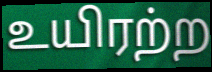
உயிரற்ற